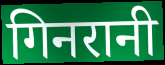
गिनरानी